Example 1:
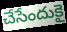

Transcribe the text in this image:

చేసేందుకై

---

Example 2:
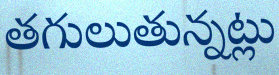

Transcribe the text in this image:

తగులుతున్నట్లు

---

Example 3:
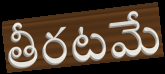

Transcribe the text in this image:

తీరటమే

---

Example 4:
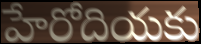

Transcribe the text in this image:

హేరోదియకు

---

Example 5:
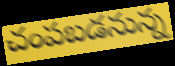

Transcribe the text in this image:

చంపబడనున్న